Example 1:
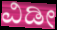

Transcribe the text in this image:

ವಿಡೀ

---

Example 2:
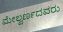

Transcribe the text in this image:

ಮೇಲ್ವರ್ಣದವರು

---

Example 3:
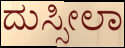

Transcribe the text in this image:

ದುಸ್ಸೀಲಾ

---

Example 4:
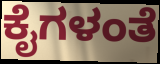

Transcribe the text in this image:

ಕೈಗಳಂತೆ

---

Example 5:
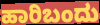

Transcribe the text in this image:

ಹಾರಿಬಂದು